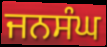
ਜਨਸੰਘ